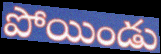
పోయిండు